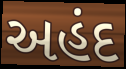
અહંદ